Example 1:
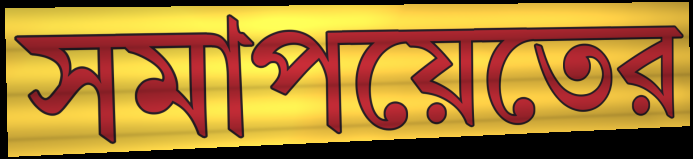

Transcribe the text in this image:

সমাপয়েতের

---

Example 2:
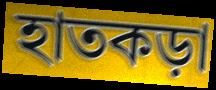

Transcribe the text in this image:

হাতকড়া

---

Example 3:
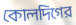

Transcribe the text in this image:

কোলদিগের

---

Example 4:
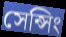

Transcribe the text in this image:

সেন্সিং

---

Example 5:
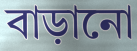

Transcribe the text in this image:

বাড়ানো